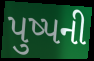
પુષ્પની